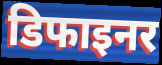
डिफाइनर